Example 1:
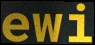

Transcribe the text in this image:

ewi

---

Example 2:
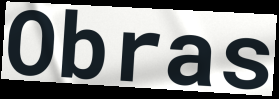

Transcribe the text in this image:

Obras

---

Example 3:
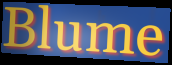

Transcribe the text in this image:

Blume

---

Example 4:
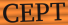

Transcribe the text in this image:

CEPT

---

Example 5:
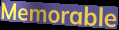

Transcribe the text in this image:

Memorable